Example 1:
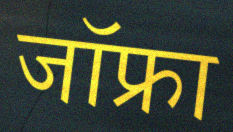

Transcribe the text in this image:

जॉफ्रा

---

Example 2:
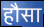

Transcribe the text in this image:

हौसा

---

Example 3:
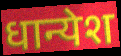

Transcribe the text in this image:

धान्येश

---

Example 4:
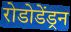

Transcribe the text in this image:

रोडोडेंड्रन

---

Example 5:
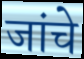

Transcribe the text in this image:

जांचे